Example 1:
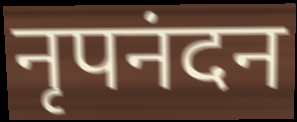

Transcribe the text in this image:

नृपनंदन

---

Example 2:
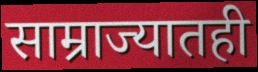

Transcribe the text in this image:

साम्राज्यातही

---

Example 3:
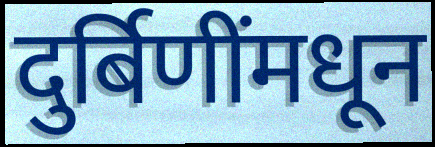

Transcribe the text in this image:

दुर्बिणींमधून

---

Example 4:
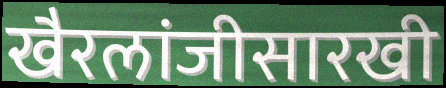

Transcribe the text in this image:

खैरलांजीसारखी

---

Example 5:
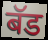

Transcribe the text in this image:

बॅड